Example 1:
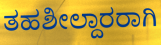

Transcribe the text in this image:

ತಹಶೀಲ್ದಾರರಾಗಿ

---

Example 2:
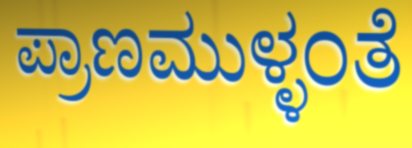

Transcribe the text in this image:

ಪ್ರಾಣಮುಳ್ಳಂತೆ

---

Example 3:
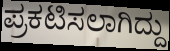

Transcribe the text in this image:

ಪ್ರಕಟಿಸಲಾಗಿದ್ದು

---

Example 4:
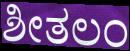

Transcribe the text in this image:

ಶೀತಲಂ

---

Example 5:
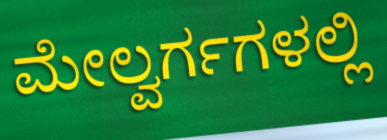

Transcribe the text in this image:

ಮೇಲ್ವರ್ಗಗಳಲ್ಲಿ